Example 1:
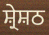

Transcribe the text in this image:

ਸ਼੍ਰੇਸ਼ਠ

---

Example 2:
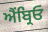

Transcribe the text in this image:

ਐਂਬ੍ਰਿਓ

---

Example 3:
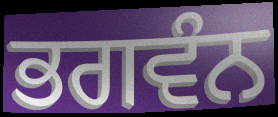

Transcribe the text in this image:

ਭਗਵੰਨ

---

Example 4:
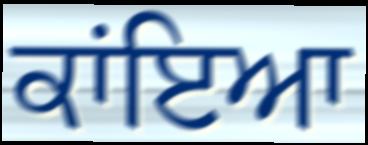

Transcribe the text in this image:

ਕਾਂਇਆ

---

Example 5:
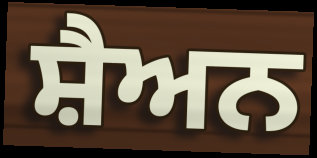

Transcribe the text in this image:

ਸ਼ੈਅਨ